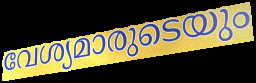
വേശ്യമാരുടെയും